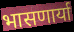
भासणार्या